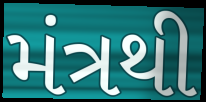
મંત્રથી